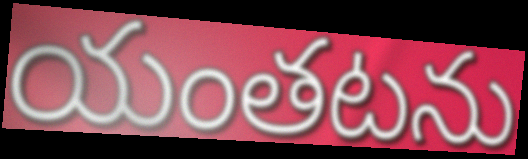
యంతటను